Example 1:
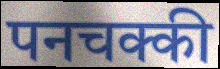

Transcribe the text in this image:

पनचक्की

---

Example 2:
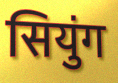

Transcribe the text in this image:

सियुंग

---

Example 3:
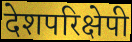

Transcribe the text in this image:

देशपरिक्षेपी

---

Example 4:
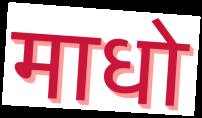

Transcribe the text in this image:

माधो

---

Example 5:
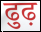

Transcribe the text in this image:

ढुढ़